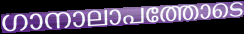
ഗാനാലാപത്തോടെ